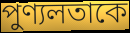
পুণ্যলতাকে